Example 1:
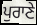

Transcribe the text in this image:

ਪੁਰਾਣੇ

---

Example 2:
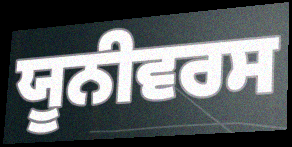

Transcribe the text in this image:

ਯੂਨੀਵਰਸ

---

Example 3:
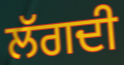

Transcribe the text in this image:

ਲੱਗਦੀ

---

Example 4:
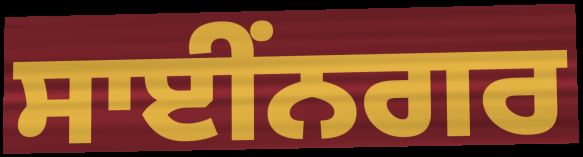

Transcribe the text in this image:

ਸਾਈਂਨਗਰ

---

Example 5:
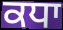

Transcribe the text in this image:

ਕਧਾ